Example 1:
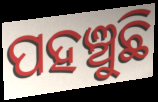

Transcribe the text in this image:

ପହଞ୍ଚୁଛି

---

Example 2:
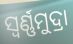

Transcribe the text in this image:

ସ୍ୱର୍ଣ୍ଣମୁଦ୍ରା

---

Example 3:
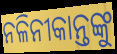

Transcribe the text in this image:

ନଳିନୀକାନ୍ତଙ୍କୁ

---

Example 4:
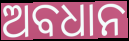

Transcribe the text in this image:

ଅବଧାନ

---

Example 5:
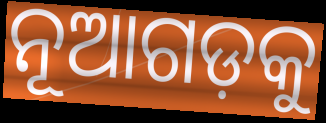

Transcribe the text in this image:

ନୂଆଗଡ଼କୁ